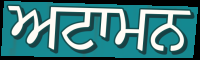
ਅਟਾਮਨ